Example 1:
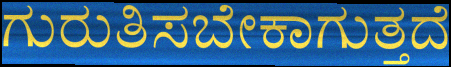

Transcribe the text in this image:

ಗುರುತಿಸಬೇಕಾಗುತ್ತದೆ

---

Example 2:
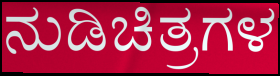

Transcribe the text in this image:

ನುಡಿಚಿತ್ರಗಳ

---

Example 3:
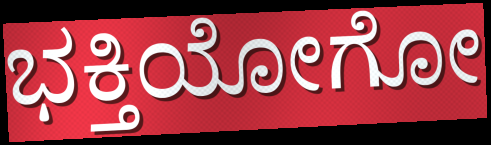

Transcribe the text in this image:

ಭಕ್ತಿಯೋಗೋ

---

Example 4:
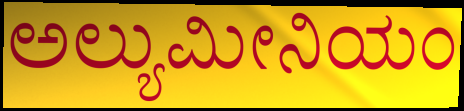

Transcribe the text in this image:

ಅಲ್ಯುಮೀನಿಯಂ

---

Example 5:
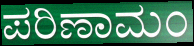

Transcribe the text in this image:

ಪರಿಣಾಮಂ